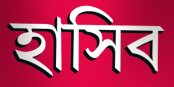
হাসিব